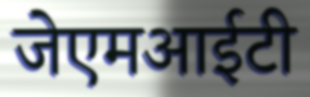
जेएमआईटी